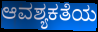
ಆವಶ್ಯಕತೆಯ